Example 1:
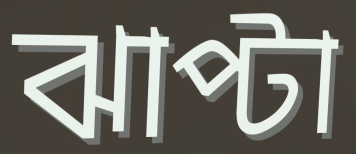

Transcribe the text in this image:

ঝাপ্টা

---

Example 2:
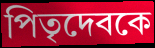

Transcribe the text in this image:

পিতৃদেবকে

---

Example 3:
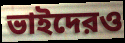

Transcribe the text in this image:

ভাইদেরও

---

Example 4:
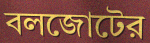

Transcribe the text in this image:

বলজোটের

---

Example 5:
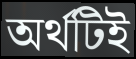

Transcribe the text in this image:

অর্থটিই